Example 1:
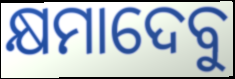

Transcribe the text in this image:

କ୍ଷମାଦେବୁ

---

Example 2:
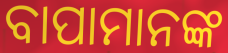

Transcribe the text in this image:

ବାପାମାନଙ୍କ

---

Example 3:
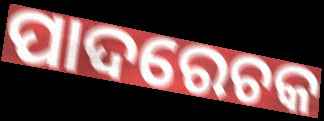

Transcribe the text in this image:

ପାଦରେଚକ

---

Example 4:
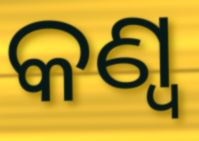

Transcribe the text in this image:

କଣ୍ୱ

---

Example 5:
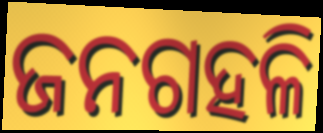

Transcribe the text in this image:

ଜନଗହଳି